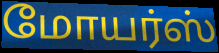
மோயர்ஸ்